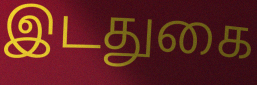
இடதுகை